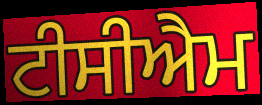
ਟੀਸੀਐਮ